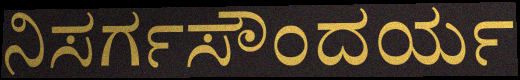
ನಿಸರ್ಗಸೌಂದರ್ಯ